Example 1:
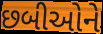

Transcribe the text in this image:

છબીઓને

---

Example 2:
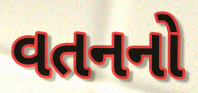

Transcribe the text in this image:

વતનનો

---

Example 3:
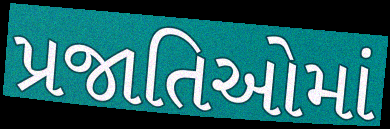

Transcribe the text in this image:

પ્રજાતિઓમાં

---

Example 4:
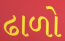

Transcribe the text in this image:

ઢાળો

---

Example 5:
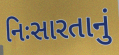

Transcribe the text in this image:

નિઃસારતાનું